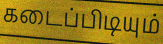
கடைப்பிடியும்